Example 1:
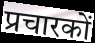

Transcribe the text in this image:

प्रचारकों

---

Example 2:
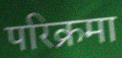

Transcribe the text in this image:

परिक्रमा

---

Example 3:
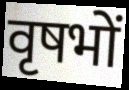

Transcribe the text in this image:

वृषभों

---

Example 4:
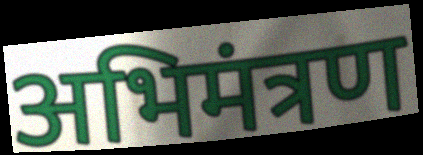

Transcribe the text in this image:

अभिमंत्रण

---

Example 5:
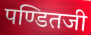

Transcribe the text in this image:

पण्डितजी